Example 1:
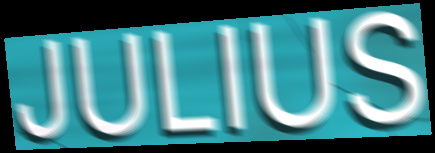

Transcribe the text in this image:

JULIUS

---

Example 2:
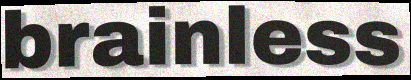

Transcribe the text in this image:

brainless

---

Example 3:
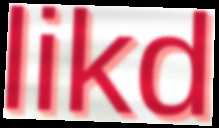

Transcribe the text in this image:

likd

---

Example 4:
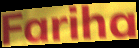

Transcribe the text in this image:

Fariha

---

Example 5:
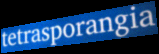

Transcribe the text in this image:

tetrasporangia